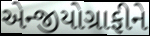
એન્જીયોગ્રાફીને